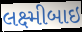
લક્ષ્મીબાઇ